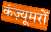
कंज़्यूमरों